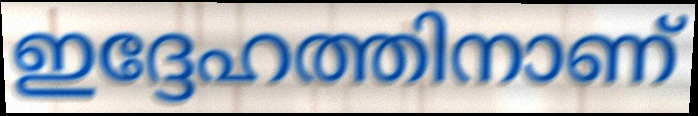
ഇദ്ദേഹത്തിനാണ്